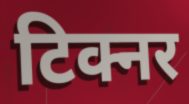
टिक्नर